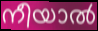
നീയാൽ